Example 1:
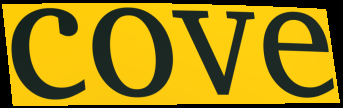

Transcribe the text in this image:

cove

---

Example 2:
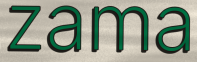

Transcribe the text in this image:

zama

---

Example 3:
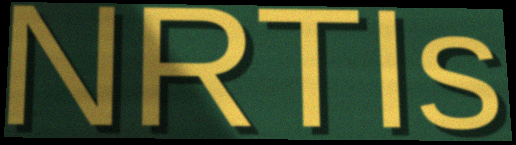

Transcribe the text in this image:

NRTIs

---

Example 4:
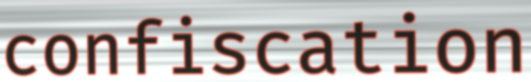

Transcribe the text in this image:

confiscation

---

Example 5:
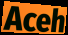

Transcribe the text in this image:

Aceh